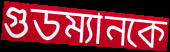
গুডম্যানকে